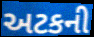
અટકની